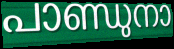
പാണ്ഡുനാ